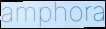
amphora